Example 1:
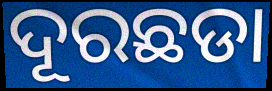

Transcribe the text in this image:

ଦୂରଛଡା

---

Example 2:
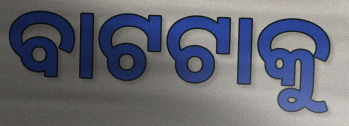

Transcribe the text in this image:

ବାଟଟାକୁ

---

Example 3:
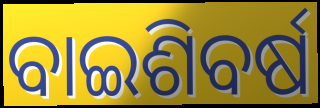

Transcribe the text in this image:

ବାଇଶିବର୍ଷ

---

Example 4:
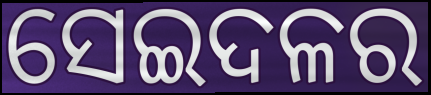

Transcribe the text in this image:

ସେଇଦଳର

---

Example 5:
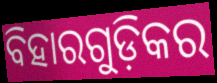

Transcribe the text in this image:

ବିହାରଗୁଡ଼ିକର